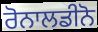
ਰੋਨਾਲਡੀਨੋ